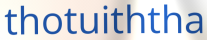
thotuiththa